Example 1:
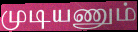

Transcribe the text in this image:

முடியணும்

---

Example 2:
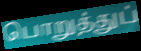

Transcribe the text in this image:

பொறுத்துப்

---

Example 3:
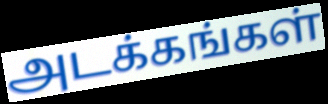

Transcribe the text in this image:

அடக்கங்கள்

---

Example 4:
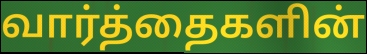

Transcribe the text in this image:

வார்த்தைகளின்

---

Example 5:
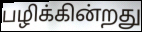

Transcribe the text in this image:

பழிக்கின்றது